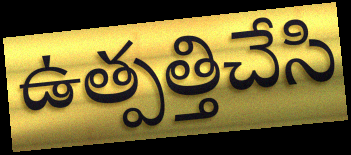
ఉత్పత్తిచేసి